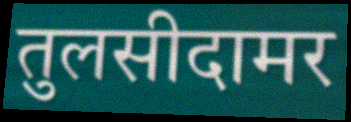
तुलसीदामर